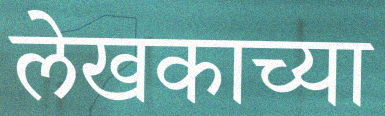
लेखकाच्या